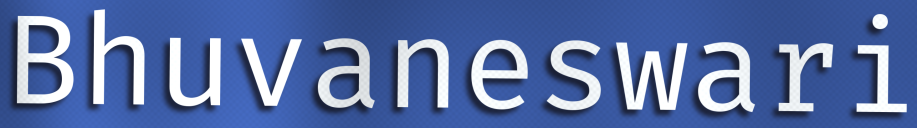
Bhuvaneswari